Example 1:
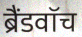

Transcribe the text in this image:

ब्रैंडवॉच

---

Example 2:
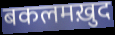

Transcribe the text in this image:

बकलमख़ुद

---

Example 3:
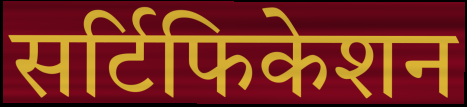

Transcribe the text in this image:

सर्टिफिकेशन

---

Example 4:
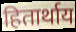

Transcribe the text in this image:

हितार्थाय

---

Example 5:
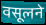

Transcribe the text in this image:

वसूलने